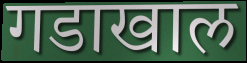
गडाखाल